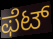
ಫೆಟ್